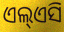
ଏଲ୍ଏସି